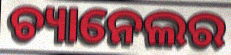
ଚ୍ୟାନେଲର